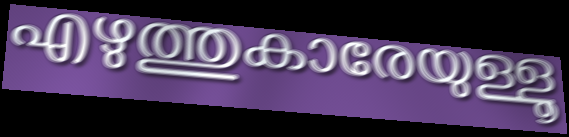
എഴുത്തുകാരേയുള്ളൂ